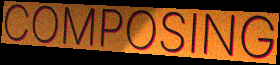
COMPOSING